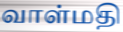
வாள்மதி